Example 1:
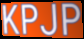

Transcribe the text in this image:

KPJP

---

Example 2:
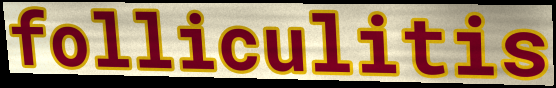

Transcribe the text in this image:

folliculitis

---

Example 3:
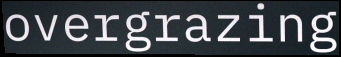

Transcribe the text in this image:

overgrazing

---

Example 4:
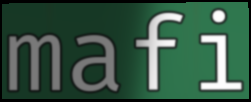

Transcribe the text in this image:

mafi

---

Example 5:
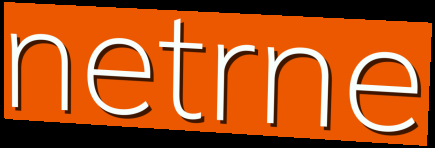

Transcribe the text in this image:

netrne